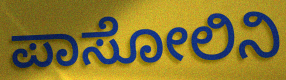
ಪಾಸೋಲಿನಿ